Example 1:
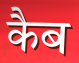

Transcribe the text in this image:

कैब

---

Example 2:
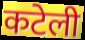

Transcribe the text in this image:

कटेली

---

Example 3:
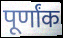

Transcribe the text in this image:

पूर्णांक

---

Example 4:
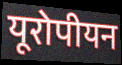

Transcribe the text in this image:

यूरोपीयन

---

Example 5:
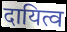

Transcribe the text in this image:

दायित्व